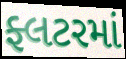
ફ્લટરમાં